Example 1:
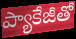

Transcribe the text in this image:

ప్యాకేజీతో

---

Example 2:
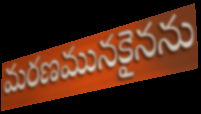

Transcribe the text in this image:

మరణమునకైనను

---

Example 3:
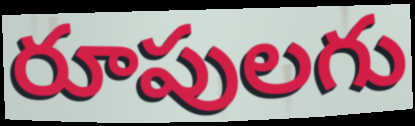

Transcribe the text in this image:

రూపులగు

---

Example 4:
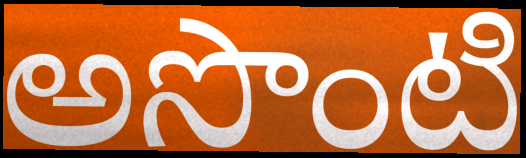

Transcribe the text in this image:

అసొంటి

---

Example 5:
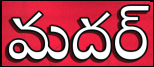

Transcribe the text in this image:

మదర్